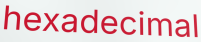
hexadecimal